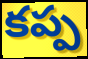
కప్ప